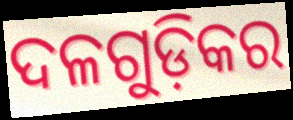
ଦଳଗୁଡ଼ିକର